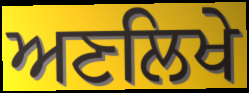
ਅਣਲਿਖੇ